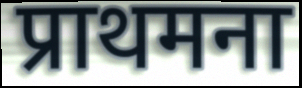
प्राथमना